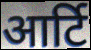
आर्टि